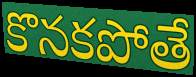
కొనకపోతే